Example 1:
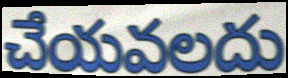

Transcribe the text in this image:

చేయవలదు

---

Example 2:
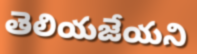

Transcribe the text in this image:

తెలియజేయని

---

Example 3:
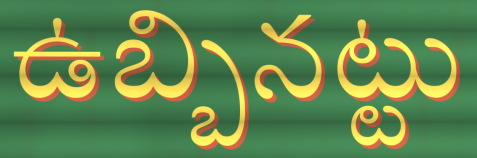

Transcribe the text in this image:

ఉబ్బినట్టు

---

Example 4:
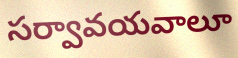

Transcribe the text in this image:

సర్వావయవాలూ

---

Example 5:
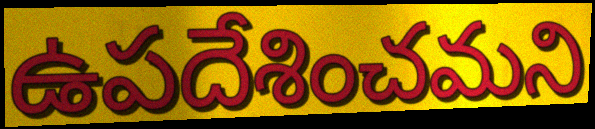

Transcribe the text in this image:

ఉపదేశించమని